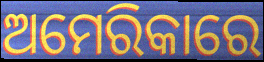
ଅମେରିକାରେ